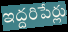
ఇద్దరిపేర్లు